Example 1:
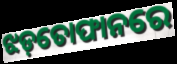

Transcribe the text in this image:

ଝଡ଼ତୋଫାନରେ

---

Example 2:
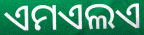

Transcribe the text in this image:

ଏମଏଲଏ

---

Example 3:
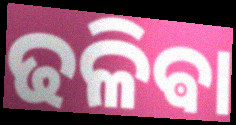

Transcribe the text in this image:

ଢଳିଵା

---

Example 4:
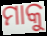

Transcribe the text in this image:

ମାକୁ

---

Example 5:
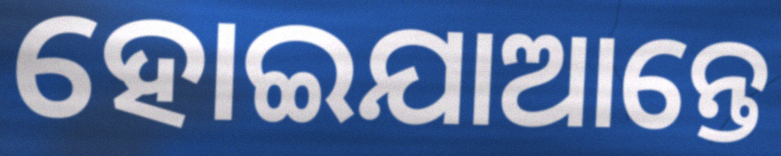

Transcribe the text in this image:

ହୋଇଯାଆନ୍ତେ